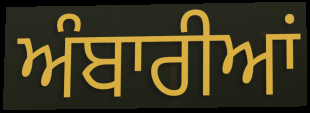
ਅੰਬਾਰੀਆਂ